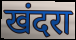
खंदरा